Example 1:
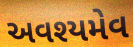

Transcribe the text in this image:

અવશ્યમેવ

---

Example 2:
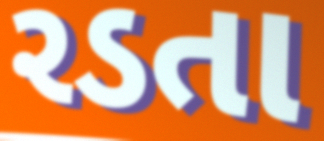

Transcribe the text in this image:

રડતા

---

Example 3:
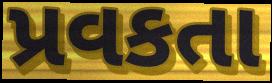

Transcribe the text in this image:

પ્રવકતા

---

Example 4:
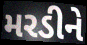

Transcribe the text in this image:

મરડીને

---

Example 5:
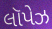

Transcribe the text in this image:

લૉપેઝ